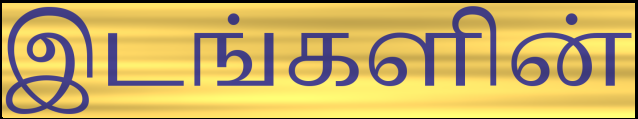
இடங்களின்